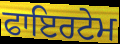
ਫਾਇਰਟੇਮ